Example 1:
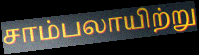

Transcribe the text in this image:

சாம்பலாயிற்று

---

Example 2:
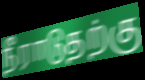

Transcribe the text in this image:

நீராடுதற்கு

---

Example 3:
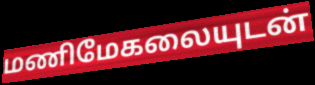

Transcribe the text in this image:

மணிமேகலையுடன்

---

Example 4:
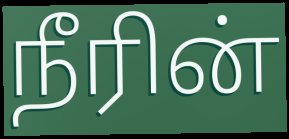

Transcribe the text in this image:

நீரின்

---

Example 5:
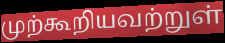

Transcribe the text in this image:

முற்கூறியவற்றுள்